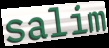
salim